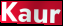
Kaur